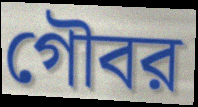
গৌবর